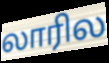
லாரில